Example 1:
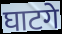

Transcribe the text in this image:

घाटगे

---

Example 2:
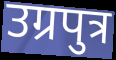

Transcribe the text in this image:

उग्रपुत्र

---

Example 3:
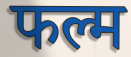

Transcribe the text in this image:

फल्म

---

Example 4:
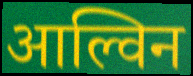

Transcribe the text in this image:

आल्विन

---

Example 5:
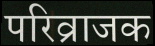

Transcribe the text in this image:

परिव्राजक